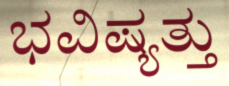
ಭವಿಷ್ಯತ್ತು